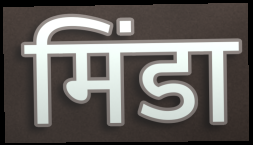
मिंडा